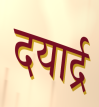
दयार्द्र